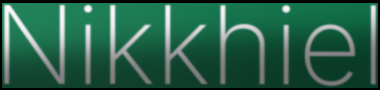
Nikkhiel